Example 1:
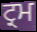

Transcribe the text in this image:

ਟ੍ਰਮ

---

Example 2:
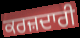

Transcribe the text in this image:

ਕਰਜ਼ਦਾਰੀ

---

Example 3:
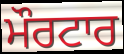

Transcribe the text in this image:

ਮੌਰਟਾਰ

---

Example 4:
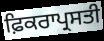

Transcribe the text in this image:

ਫ਼ਿਕਰਾਪ੍ਰਸਤੀ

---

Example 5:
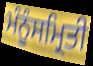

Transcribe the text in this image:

ਮੰਨੂੰਸਮ੍ਰਿਤੀ